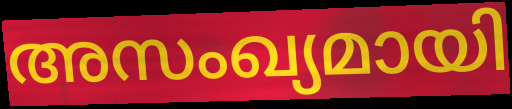
അസംഖ്യമായി